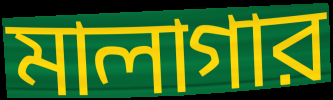
মালাগার